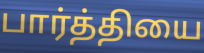
பார்த்தியை